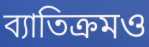
ব্যাতিক্রমও